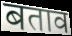
बताव